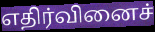
எதிர்வினைச்